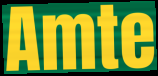
Amte